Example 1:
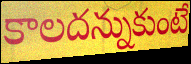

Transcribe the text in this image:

కాలదన్నుకుంటే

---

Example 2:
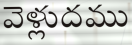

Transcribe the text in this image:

వెళ్లుదము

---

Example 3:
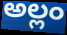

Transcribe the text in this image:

అల్లం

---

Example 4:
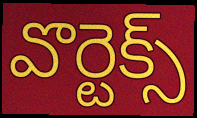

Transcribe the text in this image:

వొర్టెక్స్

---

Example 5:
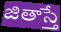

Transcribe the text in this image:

జితాస్తే